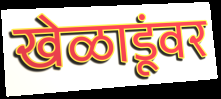
खेळाडूंवर